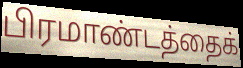
பிரமாண்டத்தைக்